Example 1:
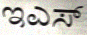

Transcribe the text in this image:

ಇಎಸ್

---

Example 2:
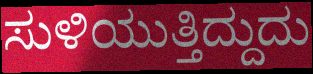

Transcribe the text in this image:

ಸುಳಿಯುತ್ತಿದ್ದುದು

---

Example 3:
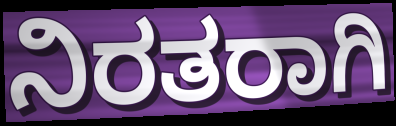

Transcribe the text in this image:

ನಿರತರಾಗಿ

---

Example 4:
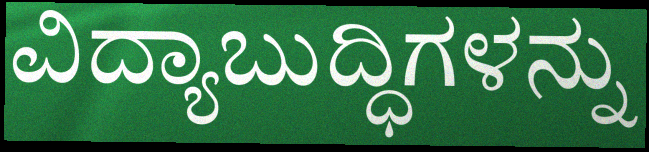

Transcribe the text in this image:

ವಿದ್ಯಾಬುದ್ಧಿಗಳನ್ನು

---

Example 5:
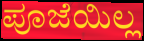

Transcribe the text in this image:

ಪೂಜೆಯಿಲ್ಲ